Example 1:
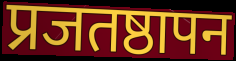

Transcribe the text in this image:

प्रजतष्ठापन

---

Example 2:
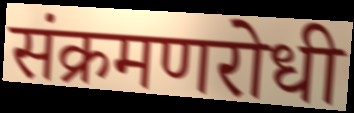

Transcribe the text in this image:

संक्रमणरोधी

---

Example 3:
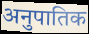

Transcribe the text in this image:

अनुपातिक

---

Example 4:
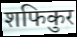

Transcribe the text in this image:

शफिकुर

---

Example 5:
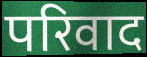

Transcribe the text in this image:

परिवाद